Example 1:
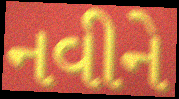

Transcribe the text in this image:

નવીને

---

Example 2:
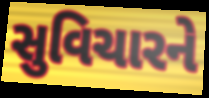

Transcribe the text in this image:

સુવિચારને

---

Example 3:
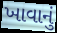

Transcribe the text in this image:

ખાવાનું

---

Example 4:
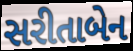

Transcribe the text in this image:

સરીતાબેન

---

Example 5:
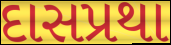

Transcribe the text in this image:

દાસપ્રથા